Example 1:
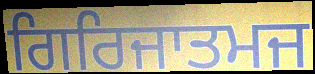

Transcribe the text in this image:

ਗਿਰਿਜਾਤਮਜ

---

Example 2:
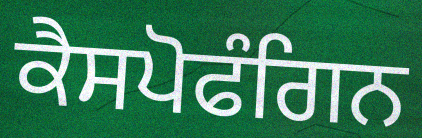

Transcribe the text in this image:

ਕੈਸਪੋਫੰਗਿਨ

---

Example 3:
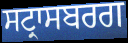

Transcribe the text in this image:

ਸਟ੍ਰਾਸਬਰਗ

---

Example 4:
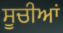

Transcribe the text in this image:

ਸੂਚੀਆਂ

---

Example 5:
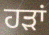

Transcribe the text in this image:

ਹੜਾਂ